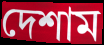
দেশাম